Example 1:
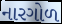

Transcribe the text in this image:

નારગોળ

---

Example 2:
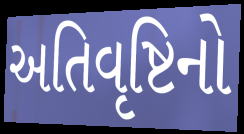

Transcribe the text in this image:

અતિવૃષ્ટિનો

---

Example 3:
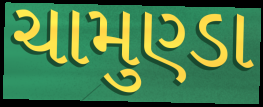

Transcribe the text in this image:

ચામુણ્ડા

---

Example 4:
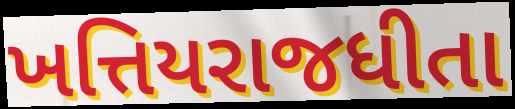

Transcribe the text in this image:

ખત્તિયરાજધીતા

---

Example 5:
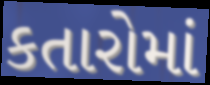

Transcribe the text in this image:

કતારોમાં